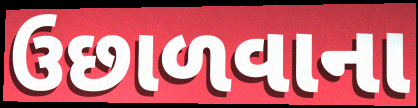
ઉછાળવાના